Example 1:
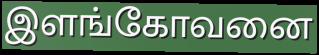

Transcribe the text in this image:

இளங்கோவனை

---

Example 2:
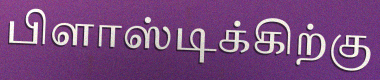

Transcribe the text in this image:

பிளாஸ்டிக்கிற்கு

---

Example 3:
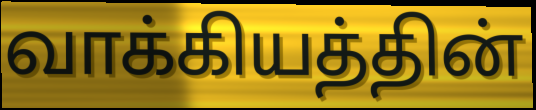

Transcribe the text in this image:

வாக்கியத்தின்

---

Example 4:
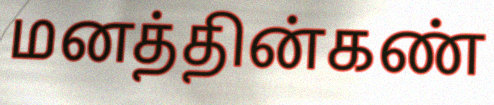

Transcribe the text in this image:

மனத்தின்கண்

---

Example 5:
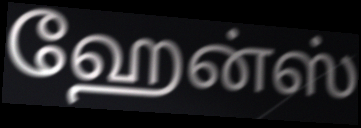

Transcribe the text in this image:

ஹேன்ஸ்